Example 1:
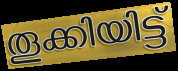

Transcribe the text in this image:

തൂക്കിയിട്ട്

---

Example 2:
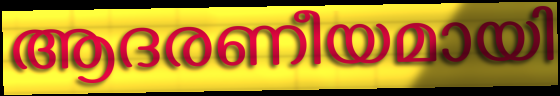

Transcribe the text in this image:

ആദരണീയമായി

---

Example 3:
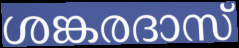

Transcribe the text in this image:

ശങ്കരദാസ്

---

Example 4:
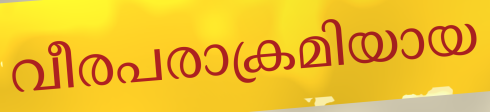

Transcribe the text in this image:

വീരപരാക്രമിയായ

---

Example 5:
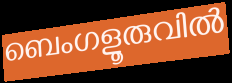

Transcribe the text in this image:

ബെംഗളൂരുവിൽ